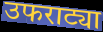
उफराट्या